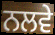
ਨਲਵੇ